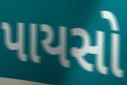
પાયસો